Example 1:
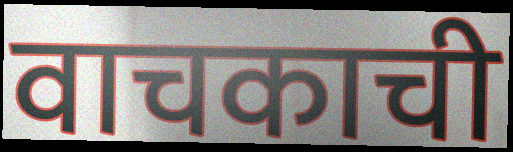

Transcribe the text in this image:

वाचकाची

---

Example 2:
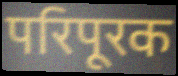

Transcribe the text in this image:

परिपूरक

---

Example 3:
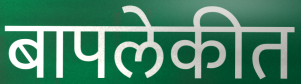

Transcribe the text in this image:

बापलेकीत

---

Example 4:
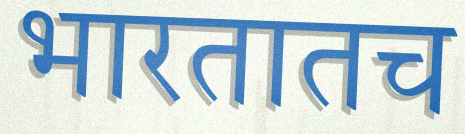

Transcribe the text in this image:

भारतातच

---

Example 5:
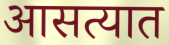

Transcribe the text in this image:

आसत्यात